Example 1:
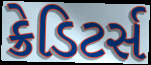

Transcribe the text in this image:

ક્રેડિટર્સ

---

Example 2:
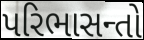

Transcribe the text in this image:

પરિભાસન્તો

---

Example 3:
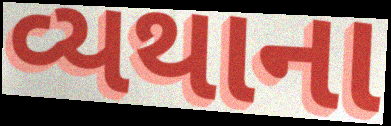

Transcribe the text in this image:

વ્યથાના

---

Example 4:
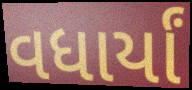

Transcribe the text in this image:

વધાર્યાં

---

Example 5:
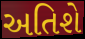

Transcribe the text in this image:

અતિશે